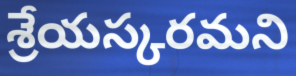
శ్రేయస్కరమని